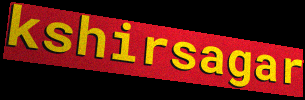
kshirsagar